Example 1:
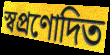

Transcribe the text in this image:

স্বপ্রণোদিত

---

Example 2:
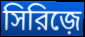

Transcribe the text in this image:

সিরিজ়ে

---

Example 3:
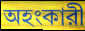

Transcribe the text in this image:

অহংকারী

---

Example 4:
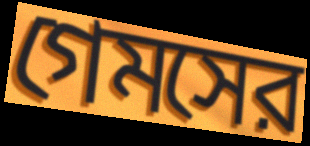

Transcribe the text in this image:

গেমসের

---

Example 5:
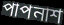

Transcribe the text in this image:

পাপনাশ